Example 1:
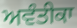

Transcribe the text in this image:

ਅਵੰਤੀਕਾ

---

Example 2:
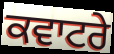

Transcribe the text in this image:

ਕਵਾਟਰੇ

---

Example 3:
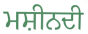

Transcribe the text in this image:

ਮਸ਼ੀਨਦੀ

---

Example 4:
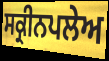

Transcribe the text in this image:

ਸਕ੍ਰੀਨਪਲੇਅ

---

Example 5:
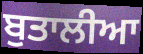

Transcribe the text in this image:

ਬੁਤਾਲੀਆ